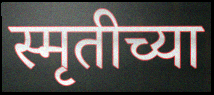
स्मृतीच्या